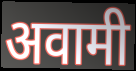
अवामी